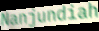
Nanjundiah